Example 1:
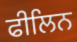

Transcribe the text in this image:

ਫੀਲਿਨ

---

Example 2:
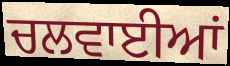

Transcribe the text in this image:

ਚਲਵਾਈਆਂ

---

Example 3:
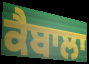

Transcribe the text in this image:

ਕੈਬਾਲਾ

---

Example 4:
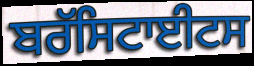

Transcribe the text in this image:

ਬਰੱਸਿਟਾਈਟਸ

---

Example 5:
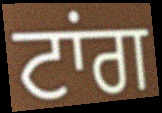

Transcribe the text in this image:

ਟਾਂਗ